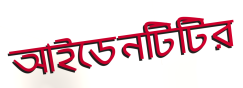
আইডেনটিটির